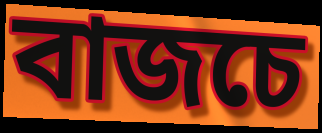
বাজচে